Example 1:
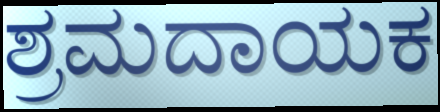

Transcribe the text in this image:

ಶ್ರಮದಾಯಕ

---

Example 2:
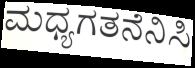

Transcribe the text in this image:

ಮಧ್ಯಗತನೆನಿಸಿ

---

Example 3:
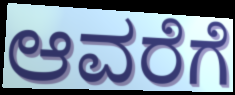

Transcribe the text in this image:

ಆವರೆಗೆ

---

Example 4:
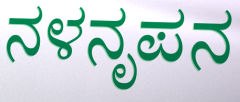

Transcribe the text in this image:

ನಳನೃಪನ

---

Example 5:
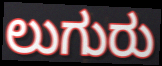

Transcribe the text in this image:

ಲುಗುರು